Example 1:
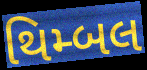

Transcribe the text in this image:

થિમ્બલ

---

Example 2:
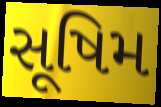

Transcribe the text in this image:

સૂષિમ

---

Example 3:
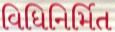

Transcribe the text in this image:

વિધિનિર્મિત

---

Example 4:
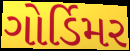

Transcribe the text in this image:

ગોર્ડિમર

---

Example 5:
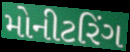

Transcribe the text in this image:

મોનીટરિંગ